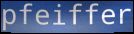
pfeiffer